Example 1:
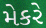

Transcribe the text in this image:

મેકરે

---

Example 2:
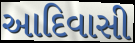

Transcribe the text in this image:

આદિવાસી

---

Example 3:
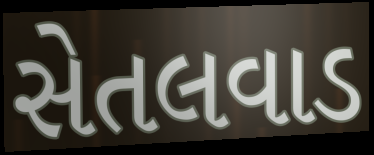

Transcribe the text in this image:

સેતલવાડ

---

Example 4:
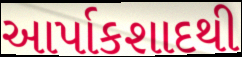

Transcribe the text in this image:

આર્પાકશાદથી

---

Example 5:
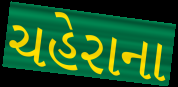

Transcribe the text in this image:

ચહેરાના